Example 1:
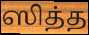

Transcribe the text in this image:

ஸித்த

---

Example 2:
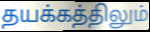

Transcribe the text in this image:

தயக்கத்திலும்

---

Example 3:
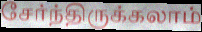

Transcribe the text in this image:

சேர்ந்திருக்கலாம்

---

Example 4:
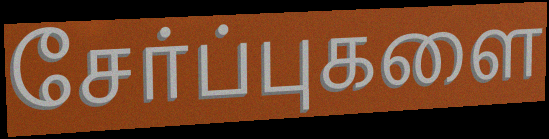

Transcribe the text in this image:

சேர்ப்புகளை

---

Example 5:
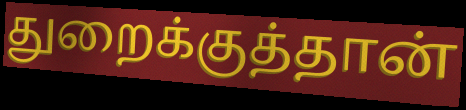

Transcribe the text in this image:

துறைக்குத்தான்